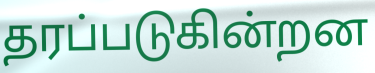
தரப்படுகின்றன